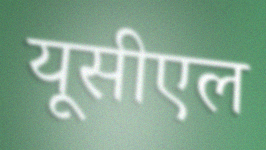
यूसीएल